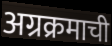
अग्रक्रमाची